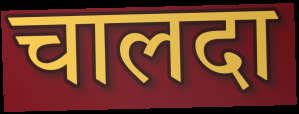
चालदा